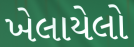
ખેલાયેલો